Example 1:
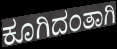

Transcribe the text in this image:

ಕೂಗಿದಂತಾಗಿ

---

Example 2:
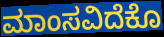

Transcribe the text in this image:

ಮಾಂಸವಿದೆಕೊ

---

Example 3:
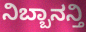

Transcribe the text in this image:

ನಿಬ್ಬಾನನ್ತಿ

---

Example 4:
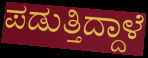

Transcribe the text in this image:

ಪಡುತ್ತಿದ್ದಾಳೆ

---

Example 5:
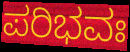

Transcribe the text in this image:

ಪರಿಭವಃ